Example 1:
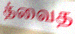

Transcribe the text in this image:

த்வைத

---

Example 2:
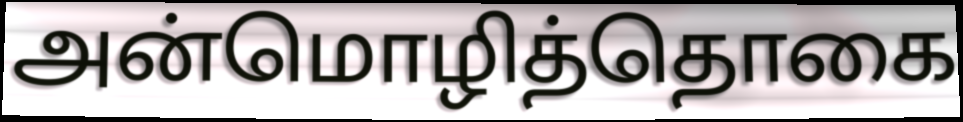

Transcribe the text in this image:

அன்மொழித்தொகை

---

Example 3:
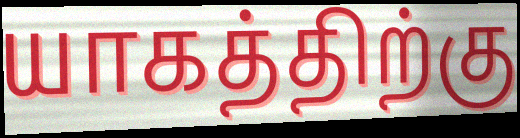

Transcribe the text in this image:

யாகத்திற்கு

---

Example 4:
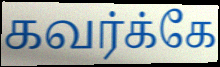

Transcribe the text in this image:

கவர்க்கே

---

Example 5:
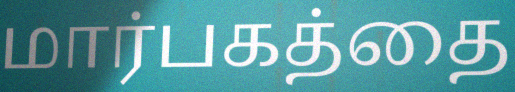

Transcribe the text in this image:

மார்பகத்தை